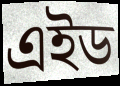
এইড